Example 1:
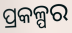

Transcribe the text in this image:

ପ୍ରକଳ୍ପର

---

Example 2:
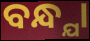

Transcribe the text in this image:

ବନ୍ଧ୍ଯା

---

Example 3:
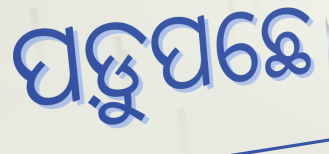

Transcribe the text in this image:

ପଡ଼ୁପଛେ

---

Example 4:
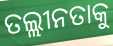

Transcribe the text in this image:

ତଲ୍ଲୀନତାକୁ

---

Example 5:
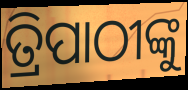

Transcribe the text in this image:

ତ୍ରିପାଠୀଙ୍କୁ